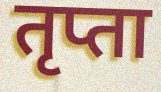
तृप्ता